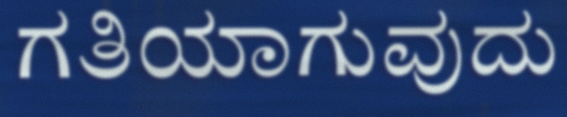
ಗತಿಯಾಗುವುದು